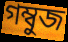
গম্বুজ